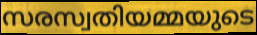
സരസ്വതിയമ്മയുടെ